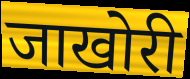
जाखोरी